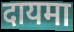
दायमा